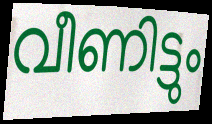
വീണിട്ടും